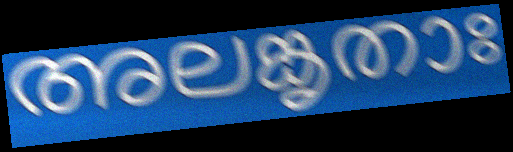
അലങ്കൃതാഃ